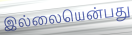
இல்லையென்பது